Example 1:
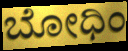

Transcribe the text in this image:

ಬೋಧಿಂ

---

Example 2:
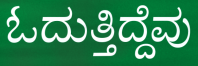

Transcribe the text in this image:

ಓದುತ್ತಿದ್ದೆವು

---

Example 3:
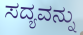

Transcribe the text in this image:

ಸದ್ಯವನ್ನು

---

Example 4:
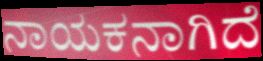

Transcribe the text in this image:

ನಾಯಕನಾಗಿದೆ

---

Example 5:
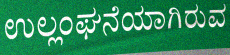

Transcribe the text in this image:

ಉಲ್ಲಂಘನೆಯಾಗಿರುವ